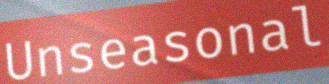
Unseasonal